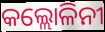
କଲ୍ଲୋଳିନୀ